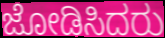
ಜೋಡಿಸಿದರು